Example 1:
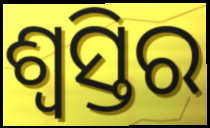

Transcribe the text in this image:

ଶ୍ୱସ୍ତିର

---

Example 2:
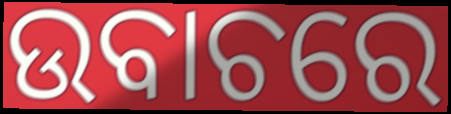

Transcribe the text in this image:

ଉବାଚରେ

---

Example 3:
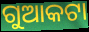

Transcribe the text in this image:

ଗୁଆକଟା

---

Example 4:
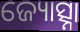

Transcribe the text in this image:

ଜ୍ୟୋତ୍ସ୍ନା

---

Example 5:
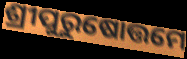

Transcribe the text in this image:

ଶ୍ରୀପୁରୁଷୋତ୍ତମେ